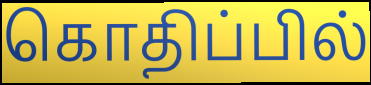
கொதிப்பில்